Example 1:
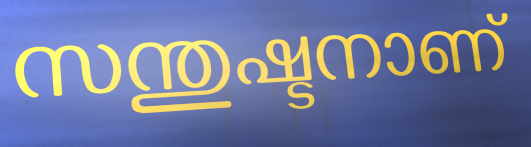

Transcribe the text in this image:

സന്തുഷ്ടനാണ്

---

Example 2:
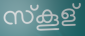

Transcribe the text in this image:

സ്കൂള്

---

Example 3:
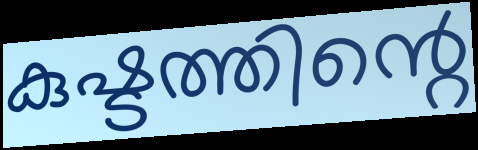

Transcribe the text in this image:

കുഷ്ടത്തിന്റെ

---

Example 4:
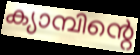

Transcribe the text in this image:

ക്യാമ്പിന്റെ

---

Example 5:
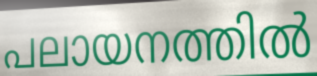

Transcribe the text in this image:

പലായനത്തിൽ